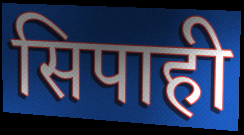
सिपाही